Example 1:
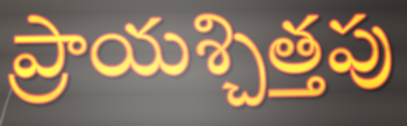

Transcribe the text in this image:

ప్రాయశ్చిత్తపు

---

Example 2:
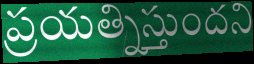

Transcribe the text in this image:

ప్రయత్నిస్తుందని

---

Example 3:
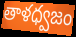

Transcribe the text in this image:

తాళధ్వజం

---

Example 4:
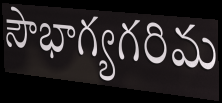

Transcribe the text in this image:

సౌభాగ్యగరిమ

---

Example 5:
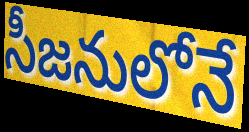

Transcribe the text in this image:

సీజనులోనే